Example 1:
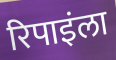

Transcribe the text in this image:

रिपाइंला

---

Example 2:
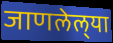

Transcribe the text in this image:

जाणलेल्या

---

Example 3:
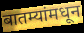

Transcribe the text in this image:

बातम्यांमधून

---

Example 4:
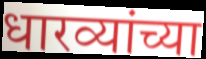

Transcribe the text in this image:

धारव्यांच्या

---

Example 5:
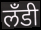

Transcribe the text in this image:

लँडी